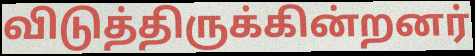
விடுத்திருக்கின்றனர்